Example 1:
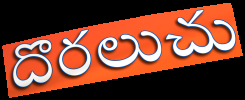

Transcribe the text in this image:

దొరలుచు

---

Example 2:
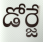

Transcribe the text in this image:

డోర్జే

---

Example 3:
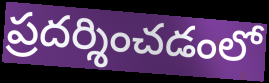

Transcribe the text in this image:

ప్రదర్శించడంలో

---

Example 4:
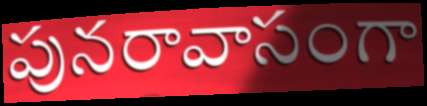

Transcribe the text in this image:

పునరావాసంగా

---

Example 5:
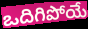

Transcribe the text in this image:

ఒదిగిపోయే